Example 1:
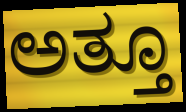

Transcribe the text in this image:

ಅತ್ತೂ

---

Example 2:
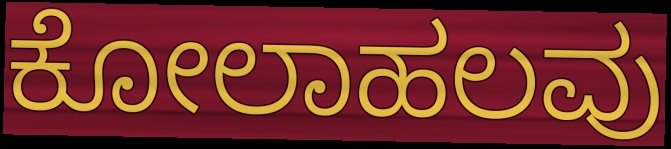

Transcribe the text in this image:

ಕೋಲಾಹಲವು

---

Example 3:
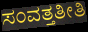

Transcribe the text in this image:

ಸಂವತ್ತತೀತಿ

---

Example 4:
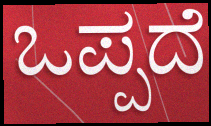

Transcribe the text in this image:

ಒಪ್ಪದೆ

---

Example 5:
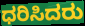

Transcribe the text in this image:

ಧರಿಸಿದರು